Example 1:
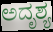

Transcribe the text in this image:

ಅದೃಶ್ಯ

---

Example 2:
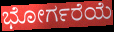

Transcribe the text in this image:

ಭೋರ್ಗರೆಯೆ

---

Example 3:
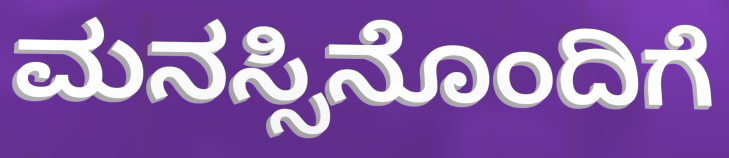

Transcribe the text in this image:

ಮನಸ್ಸಿನೊಂದಿಗೆ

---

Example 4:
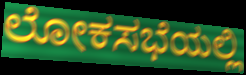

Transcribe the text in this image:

ಲೋಕಸಭೆಯಲ್ಲಿ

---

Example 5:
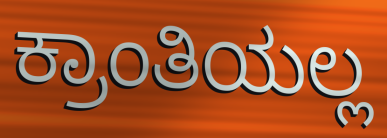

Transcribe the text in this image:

ಕ್ರಾಂತಿಯಲ್ಲ